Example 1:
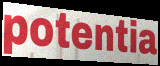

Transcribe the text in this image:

potentia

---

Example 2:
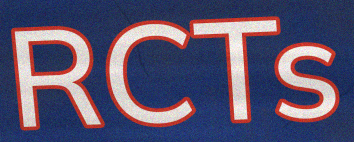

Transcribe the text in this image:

RCTs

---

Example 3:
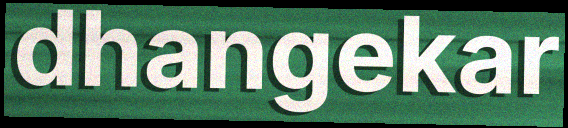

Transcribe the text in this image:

dhangekar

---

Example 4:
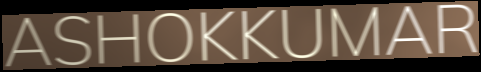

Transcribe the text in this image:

ASHOKKUMAR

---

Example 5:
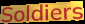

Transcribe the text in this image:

Soldiers